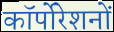
कॉर्पोरेशनों